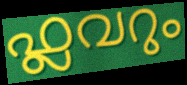
ഫ്ലവറും